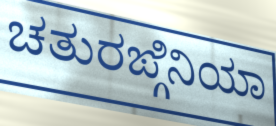
ಚತುರಙ್ಗಿನಿಯಾ